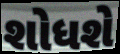
શોધશે